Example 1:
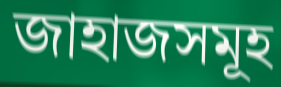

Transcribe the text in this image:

জাহাজসমূহ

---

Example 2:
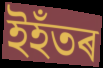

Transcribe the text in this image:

ইহঁতৰ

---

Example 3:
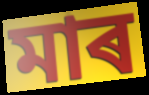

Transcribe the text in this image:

মাৰ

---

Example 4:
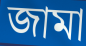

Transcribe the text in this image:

জামা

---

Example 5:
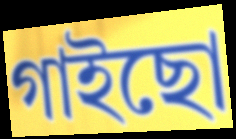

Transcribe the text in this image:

গাইছো